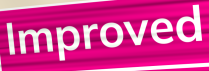
Improved